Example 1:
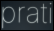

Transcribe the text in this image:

prati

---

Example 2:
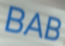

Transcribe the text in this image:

BAB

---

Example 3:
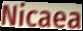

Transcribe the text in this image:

Nicaea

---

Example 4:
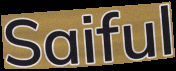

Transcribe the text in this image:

Saiful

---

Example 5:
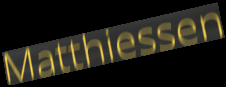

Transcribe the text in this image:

Matthiessen